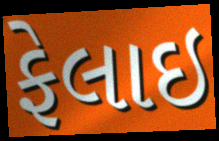
ફેલાઇ